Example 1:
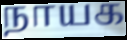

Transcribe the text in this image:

நாயக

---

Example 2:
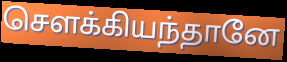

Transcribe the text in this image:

சௌக்கியந்தானே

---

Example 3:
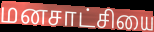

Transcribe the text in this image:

மனசாட்சியை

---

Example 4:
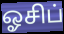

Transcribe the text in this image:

ஓசிப்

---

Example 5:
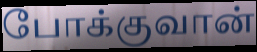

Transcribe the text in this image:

போக்குவான்